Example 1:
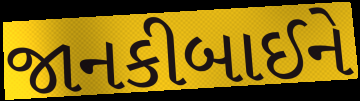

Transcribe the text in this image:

જાનકીબાઈને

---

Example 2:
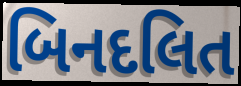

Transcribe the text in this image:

બિનદલિત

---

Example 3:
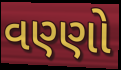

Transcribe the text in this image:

વણ્ણો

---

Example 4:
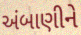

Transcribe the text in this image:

અંબાણીને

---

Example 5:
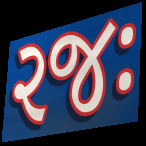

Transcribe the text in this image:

રજઃ